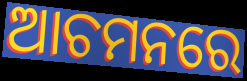
ଆଚମନରେ